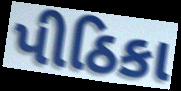
પીઠિકા